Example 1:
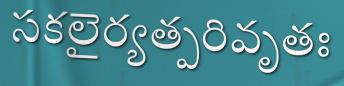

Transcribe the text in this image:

సకలైర్యత్పరివృతః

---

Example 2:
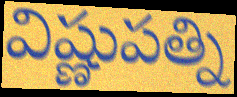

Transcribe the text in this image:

విష్ణుపత్ని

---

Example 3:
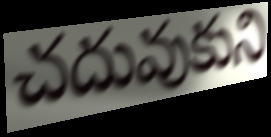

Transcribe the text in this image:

చదువుకుని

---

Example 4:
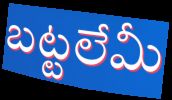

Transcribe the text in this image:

బట్టలేమీ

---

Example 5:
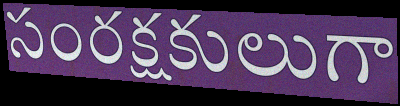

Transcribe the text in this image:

సంరక్షకులుగా